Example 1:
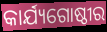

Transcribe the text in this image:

କାର୍ଯ୍ୟଗୋଷ୍ଠୀର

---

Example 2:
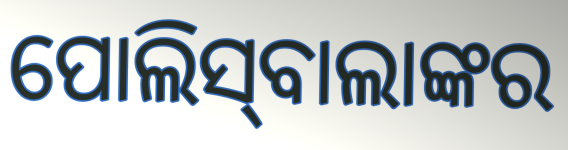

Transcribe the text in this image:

ପୋଲିସ୍‌ବାଲାଙ୍କର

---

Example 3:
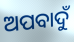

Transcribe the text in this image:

ଅପବାଦୁଁ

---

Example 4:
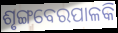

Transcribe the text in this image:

ଶୃଙ୍ଗବେରପାଳକି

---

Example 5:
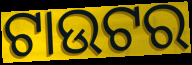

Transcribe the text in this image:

ଟାଉଟର